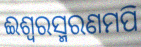
ଈଶ୍ଵରସ୍ମରଣମପି